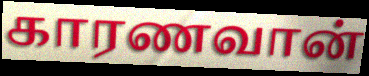
காரணவான்